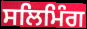
ਸਲਿਮਿੰਗ